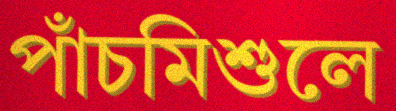
পাঁচমিশুলে